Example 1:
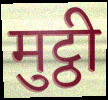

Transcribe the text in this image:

मुट्ठी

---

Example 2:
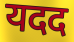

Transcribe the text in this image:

यदद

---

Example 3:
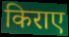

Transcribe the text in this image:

किराए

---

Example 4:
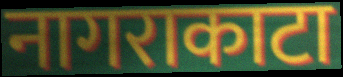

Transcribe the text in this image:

नागराकाटा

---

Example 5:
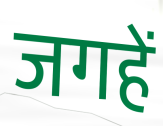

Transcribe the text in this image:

जगहें